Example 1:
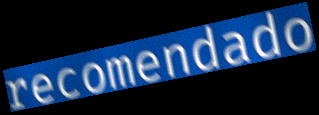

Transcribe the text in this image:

recomendado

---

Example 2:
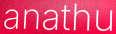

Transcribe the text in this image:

anathu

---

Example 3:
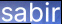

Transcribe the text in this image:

sabir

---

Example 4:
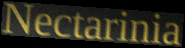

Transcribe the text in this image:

Nectarinia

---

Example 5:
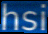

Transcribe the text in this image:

hsi